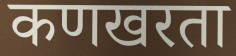
कणखरता